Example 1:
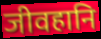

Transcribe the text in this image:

जीवहानि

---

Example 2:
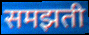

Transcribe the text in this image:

समझती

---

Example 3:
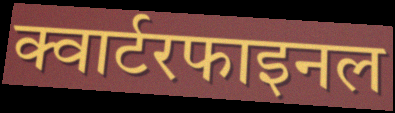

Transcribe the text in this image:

क्वार्टरफाइनल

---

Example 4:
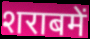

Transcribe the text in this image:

शराबमें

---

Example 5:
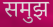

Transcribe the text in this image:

समुझ